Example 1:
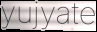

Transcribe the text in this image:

yujyate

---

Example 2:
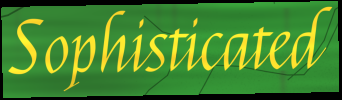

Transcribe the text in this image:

Sophisticated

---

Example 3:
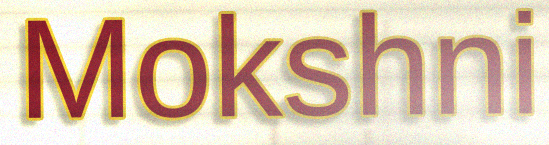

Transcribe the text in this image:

Mokshni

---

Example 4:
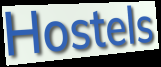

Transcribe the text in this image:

Hostels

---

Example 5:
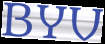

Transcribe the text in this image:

BYU